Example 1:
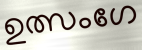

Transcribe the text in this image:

ഉത്സംഗേ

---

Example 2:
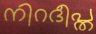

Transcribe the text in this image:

നിറദീപ്ത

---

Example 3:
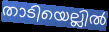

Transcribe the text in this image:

താടിയെല്ലിൽ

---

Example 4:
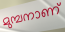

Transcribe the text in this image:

മുമ്പനാണ്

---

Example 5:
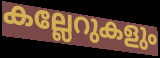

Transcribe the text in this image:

കല്ലേറുകളും